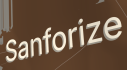
Sanforize